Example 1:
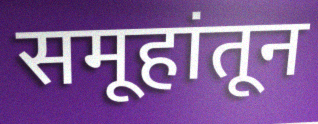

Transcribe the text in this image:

समूहांतून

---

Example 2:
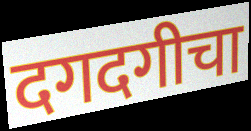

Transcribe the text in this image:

दगदगीचा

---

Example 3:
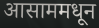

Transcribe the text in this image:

आसाममधून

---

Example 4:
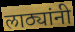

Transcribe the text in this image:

लाठ्यांनी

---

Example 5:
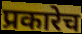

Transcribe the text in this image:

प्रकारेच